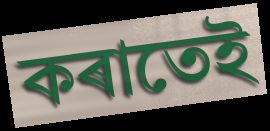
কৰাতেই